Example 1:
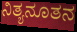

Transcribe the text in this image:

ನಿತ್ಯನೂತನ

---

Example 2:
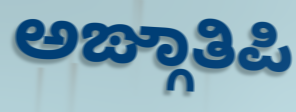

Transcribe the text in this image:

ಅಙ್ಗಾತಿಪಿ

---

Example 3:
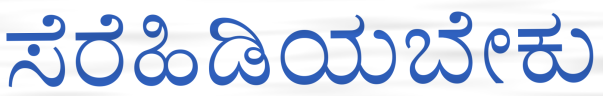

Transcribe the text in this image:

ಸೆರೆಹಿಡಿಯಬೇಕು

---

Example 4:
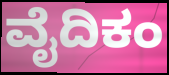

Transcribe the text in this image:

ವೈದಿಕಂ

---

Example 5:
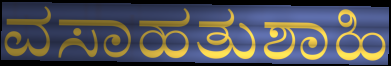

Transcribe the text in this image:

ವಸಾಹತುಶಾಹಿ